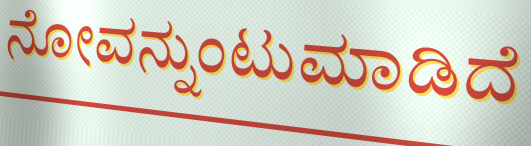
ನೋವನ್ನುಂಟುಮಾಡಿದೆ